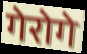
गेरोगे